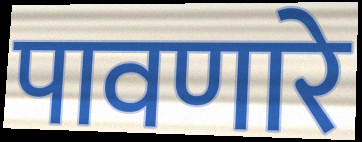
पावणारे